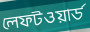
লেফটওয়ার্ড